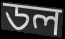
ডল